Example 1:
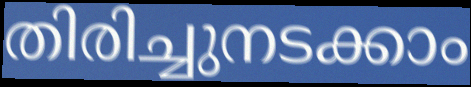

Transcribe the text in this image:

തിരിച്ചുനടക്കാം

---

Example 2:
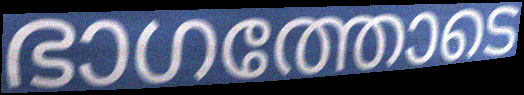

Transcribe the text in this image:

ഭാഗത്തോടെ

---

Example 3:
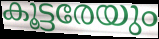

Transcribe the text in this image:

കൂട്ടരേയും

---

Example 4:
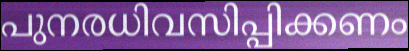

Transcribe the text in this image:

പുനരധിവസിപ്പിക്കണം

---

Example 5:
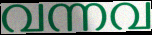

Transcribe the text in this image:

വന്നവ